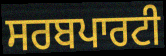
ਸਰਬਪਾਰਟੀ